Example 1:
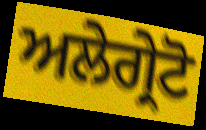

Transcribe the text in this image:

ਅਲੇਗ੍ਰੇਟੋ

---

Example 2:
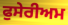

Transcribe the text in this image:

ਫੁਸੇਰੀਅਮ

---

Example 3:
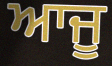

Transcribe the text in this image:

ਆਜੂ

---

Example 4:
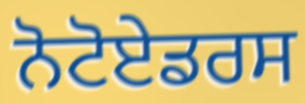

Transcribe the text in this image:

ਨੋਟੋਏਡਰਸ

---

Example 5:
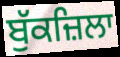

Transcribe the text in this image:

ਬੁੱਕਜ਼ਿਲਾ